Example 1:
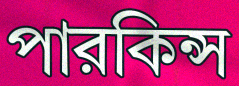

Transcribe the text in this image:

পারকিন্স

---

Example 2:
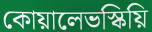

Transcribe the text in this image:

কোয়ালেভস্কিয়ি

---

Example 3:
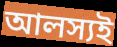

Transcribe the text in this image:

আলস্যই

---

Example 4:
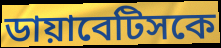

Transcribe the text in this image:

ডায়াবেটিসকে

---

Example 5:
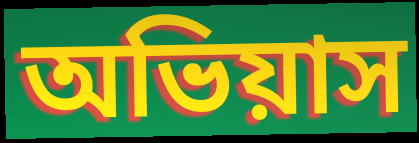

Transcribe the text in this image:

অভিয়াস